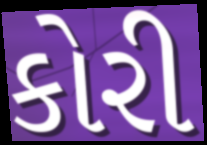
કોરી